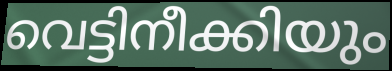
വെട്ടിനീക്കിയും